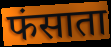
फंसाता